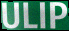
ULIP